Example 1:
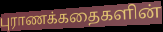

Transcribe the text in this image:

புராணக்கதைகளின்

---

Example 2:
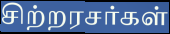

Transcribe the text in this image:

சிற்றரசர்கள்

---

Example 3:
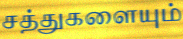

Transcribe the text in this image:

சத்துகளையும்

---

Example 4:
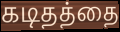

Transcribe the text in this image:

கடிதத்தை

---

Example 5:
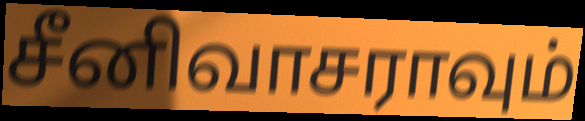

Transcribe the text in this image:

சீனிவாசராவும்